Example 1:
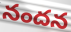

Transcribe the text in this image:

నందన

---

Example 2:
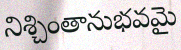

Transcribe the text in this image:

నిశ్చింతానుభవమై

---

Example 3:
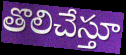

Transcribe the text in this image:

తొలిచేస్తూ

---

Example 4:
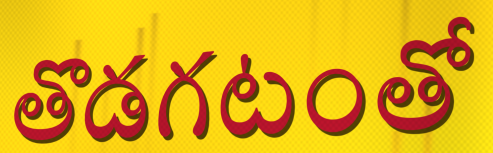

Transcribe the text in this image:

తొడగటంతో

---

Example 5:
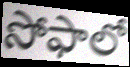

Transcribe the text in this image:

సోఫాలో